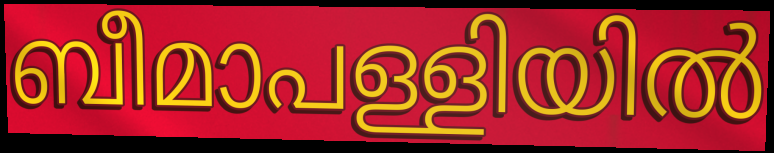
ബീമാപള്ളിയിൽ